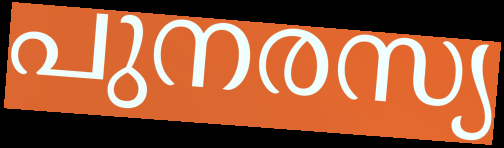
പുനരസ്യ